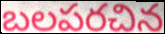
బలపరచిన